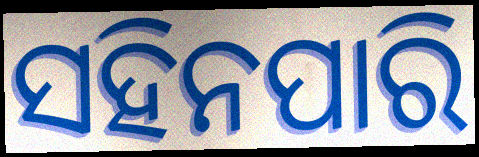
ସହିନପାରି